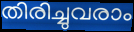
തിരിച്ചുവരാം